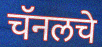
चॅनलचे